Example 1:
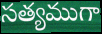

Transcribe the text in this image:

సత్యముగా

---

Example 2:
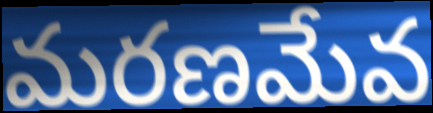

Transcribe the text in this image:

మరణమేవ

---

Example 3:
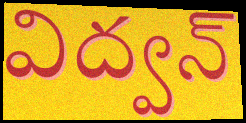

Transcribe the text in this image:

విద్వన్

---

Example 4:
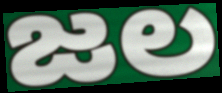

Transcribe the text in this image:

జల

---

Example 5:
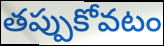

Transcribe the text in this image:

తప్పుకోవటం